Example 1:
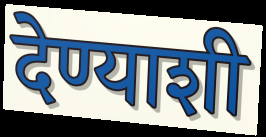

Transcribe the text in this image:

देण्याशी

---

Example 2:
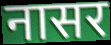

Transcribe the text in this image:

नासर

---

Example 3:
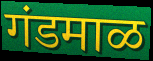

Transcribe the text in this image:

गंडमाळ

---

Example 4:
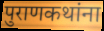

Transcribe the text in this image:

पुराणकथांना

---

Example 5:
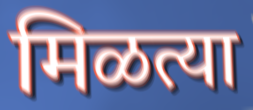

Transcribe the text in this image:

मिळत्या